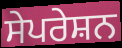
ਸੇਪਰੇਸ਼ਨ